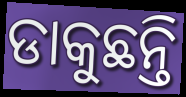
ଡାକୁଛନ୍ତି